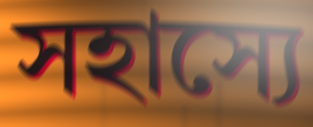
সহাস্যে